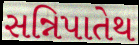
સન્નિપાતેથ